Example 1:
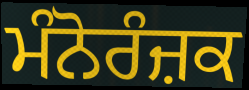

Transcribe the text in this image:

ਮੰਨੋਰੰਜ਼ਕ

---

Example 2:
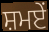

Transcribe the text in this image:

ਸ਼ਮਏਂ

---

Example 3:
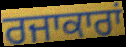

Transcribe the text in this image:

ਰਜਾਕਾਰਾਂ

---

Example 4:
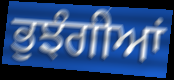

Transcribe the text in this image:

ਭੁਝੰਗੀਆਂ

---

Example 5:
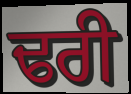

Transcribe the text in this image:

ਢਰੀ